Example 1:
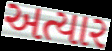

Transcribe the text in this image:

અત્યાર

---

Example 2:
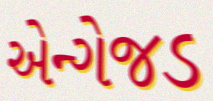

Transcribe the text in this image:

એન્ગેજડ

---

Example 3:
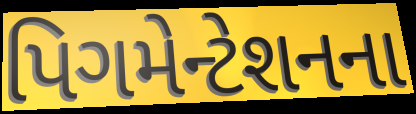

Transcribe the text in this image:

પિગમેન્ટેશનના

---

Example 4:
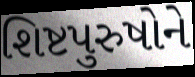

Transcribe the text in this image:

શિષ્ટપુરુષોને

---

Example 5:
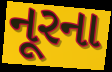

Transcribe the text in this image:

નૂરના